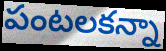
పంటలకన్నా